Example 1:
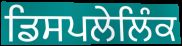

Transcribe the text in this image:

ਡਿਸਪਲੇਲਿੰਕ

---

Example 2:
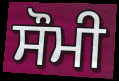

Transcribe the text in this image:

ਸੌਮੀ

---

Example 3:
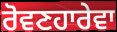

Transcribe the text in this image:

ਰੋਵਣਹਾਰੇਵਾ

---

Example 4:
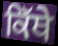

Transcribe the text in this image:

ਕਿੱਥੇ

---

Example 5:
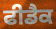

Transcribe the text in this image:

ਫੀਡੈਕ